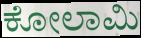
ಕೋಲಾಮಿ